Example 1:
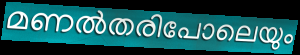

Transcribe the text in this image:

മണൽതരിപോലെയും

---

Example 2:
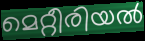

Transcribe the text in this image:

മെറ്റീരിയൽ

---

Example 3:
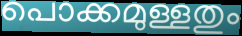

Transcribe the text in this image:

പൊക്കമുള്ളതും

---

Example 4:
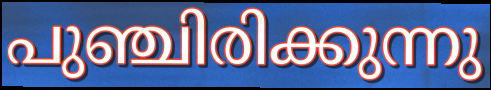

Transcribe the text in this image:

പുഞ്ചിരിക്കുന്നു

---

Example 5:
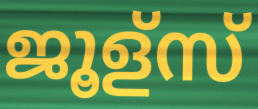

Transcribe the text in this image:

ജൂള്സ്